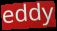
eddy